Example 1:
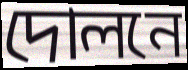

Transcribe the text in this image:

দোলনে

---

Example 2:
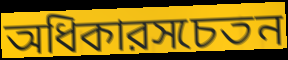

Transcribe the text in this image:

অধিকারসচেতন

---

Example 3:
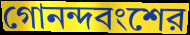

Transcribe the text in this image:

গোনন্দবংশের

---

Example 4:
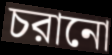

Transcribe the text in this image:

চরানো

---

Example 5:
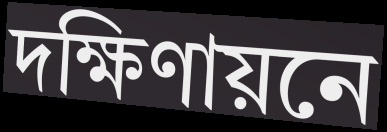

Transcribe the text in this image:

দক্ষিণায়নে